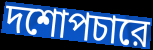
দশোপচারে